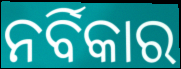
ନର୍ବିକାର